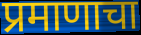
प्रमाणाचा